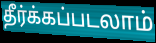
தீர்க்கப்படலாம்